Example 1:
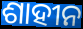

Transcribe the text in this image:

ଶାହୀନ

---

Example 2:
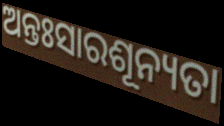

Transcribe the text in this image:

ଅନ୍ତଃସାରଶୂନ୍ୟତା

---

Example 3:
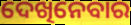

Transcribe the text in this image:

ଦେଖିନେବାର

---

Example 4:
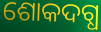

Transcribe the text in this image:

ଶୋକଦଗ୍ଧ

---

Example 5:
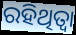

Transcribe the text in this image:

ରହିଥିତ୍ବା